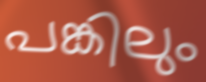
പങ്കിലും